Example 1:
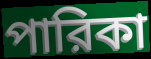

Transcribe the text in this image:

পারিকা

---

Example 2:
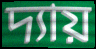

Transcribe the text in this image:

দ্যায়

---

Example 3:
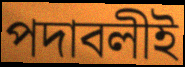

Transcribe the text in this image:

পদাবলীই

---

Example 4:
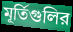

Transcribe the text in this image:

মূর্তিগুলির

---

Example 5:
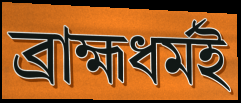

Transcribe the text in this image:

ব্রাহ্মধর্মই